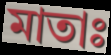
মাতাঃ